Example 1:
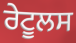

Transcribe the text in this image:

ਰੇਟੂਲਸ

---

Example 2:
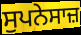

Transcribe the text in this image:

ਸੁਪਨੇਸਾਜ਼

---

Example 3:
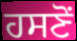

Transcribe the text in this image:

ਹਸਣੋਂ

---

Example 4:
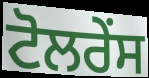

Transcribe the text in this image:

ਟੋਲਰੇਂਸ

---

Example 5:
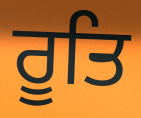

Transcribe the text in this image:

ਰੂਤਿ